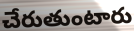
చేరుతుంటారు